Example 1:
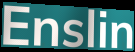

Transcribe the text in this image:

Enslin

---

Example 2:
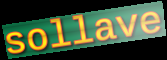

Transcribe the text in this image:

sollave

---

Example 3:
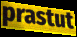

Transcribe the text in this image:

prastut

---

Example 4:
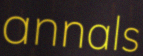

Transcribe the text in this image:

annals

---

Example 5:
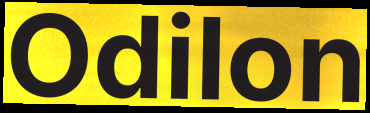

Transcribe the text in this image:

Odilon